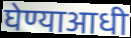
घेण्याआधी